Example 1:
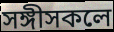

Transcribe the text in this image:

সঙ্গীসকলে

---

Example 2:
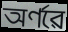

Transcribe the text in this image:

অৰ্ণৱে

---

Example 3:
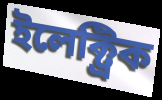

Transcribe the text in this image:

ইলেক্ট্ৰিক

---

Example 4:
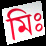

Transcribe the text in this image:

মিঃ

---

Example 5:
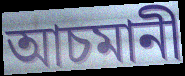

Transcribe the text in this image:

আচমানী